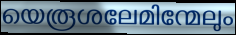
യെരൂശലേമിന്മേലും